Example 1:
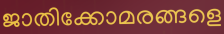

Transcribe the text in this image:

ജാതിക്കോമരങ്ങളെ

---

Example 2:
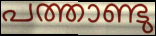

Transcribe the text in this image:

പത്താണ്ടു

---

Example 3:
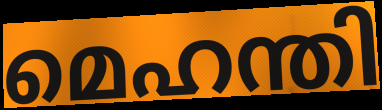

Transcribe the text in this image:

മെഹന്തി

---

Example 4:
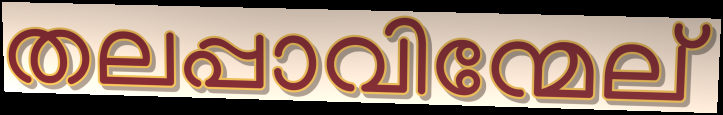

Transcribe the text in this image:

തലപ്പാവിന്മേല്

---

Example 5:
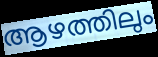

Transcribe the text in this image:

ആഴത്തിലും